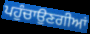
ਪਹੁੰਚਾਉਣਗੀਆਂ